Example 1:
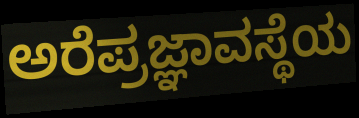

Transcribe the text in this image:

ಅರೆಪ್ರಜ್ಞಾವಸ್ಥೆಯ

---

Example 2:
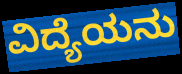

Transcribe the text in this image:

ವಿದ್ಯೆಯನು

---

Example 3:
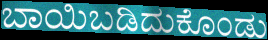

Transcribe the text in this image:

ಬಾಯಿಬಡಿದುಕೊಂಡು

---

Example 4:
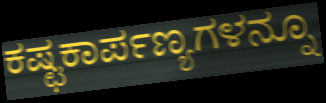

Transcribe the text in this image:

ಕಷ್ಟಕಾರ್ಪಣ್ಯಗಳನ್ನೂ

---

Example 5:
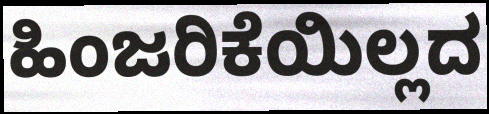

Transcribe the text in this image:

ಹಿಂಜರಿಕೆಯಿಲ್ಲದ